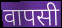
वापसी